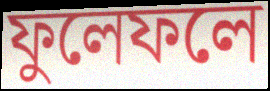
ফুলেফলে